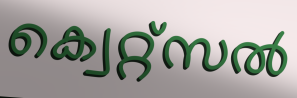
ക്വെറ്റ്സൽ